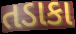
તડાકા